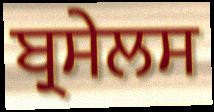
ਬ੍ਰਸੇਲਸ